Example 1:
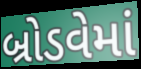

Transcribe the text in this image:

બ્રોડવેમાં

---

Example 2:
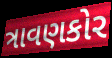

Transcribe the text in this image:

ત્રાવણકોર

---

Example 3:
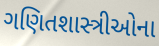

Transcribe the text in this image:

ગણિતશાસ્ત્રીઓના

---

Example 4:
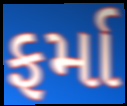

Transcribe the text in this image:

ફર્મા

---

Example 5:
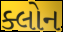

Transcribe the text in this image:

ક્લોન